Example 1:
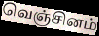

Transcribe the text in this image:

வெஞ்சினம்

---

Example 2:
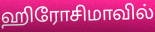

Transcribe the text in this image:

ஹிரோசிமாவில்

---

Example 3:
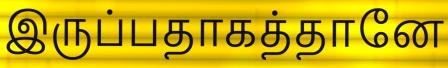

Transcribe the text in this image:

இருப்பதாகத்தானே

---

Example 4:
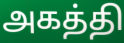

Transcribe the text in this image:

அகத்தி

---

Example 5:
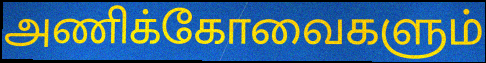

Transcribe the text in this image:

அணிக்கோவைகளும்